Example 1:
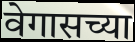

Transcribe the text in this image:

वेगासच्या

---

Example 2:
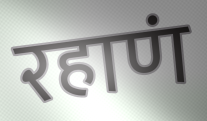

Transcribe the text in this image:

रहाणं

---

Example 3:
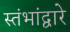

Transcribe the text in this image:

स्तंभांद्वारे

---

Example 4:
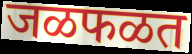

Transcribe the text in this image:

जळफळत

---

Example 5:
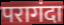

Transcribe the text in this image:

परागंदा